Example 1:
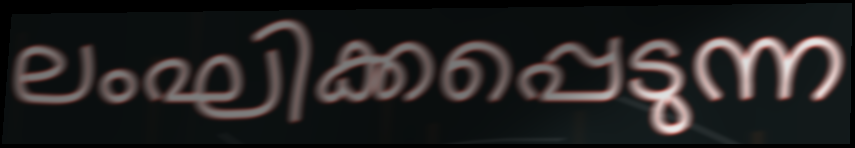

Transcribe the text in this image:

ലംഘിക്കപ്പെടുന്ന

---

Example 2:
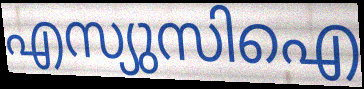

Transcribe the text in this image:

എസ്യുസിഐ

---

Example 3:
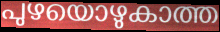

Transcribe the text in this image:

പുഴയൊഴുകാത്ത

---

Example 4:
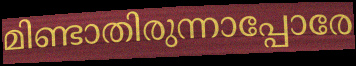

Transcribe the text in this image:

മിണ്ടാതിരുന്നാപ്പോരേ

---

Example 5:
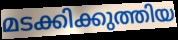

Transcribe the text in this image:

മടക്കിക്കുത്തിയ